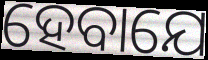
ହେବାଯେ